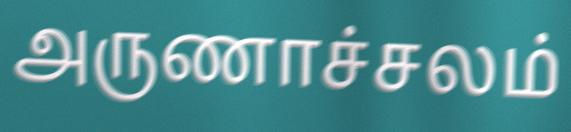
அருணாச்சலம்